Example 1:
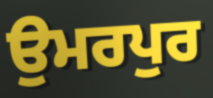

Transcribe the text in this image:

ਉਮਰਪੁਰ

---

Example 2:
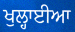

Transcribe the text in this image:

ਖੁਲ੍ਹਾਈਆ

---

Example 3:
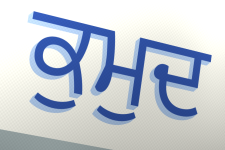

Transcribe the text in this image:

ਕੁਮੁਦ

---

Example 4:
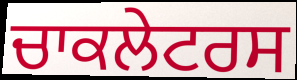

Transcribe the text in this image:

ਚਾਕਲੇਟਰਸ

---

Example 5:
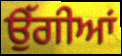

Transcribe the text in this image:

ਉੱਗੀਆਂ